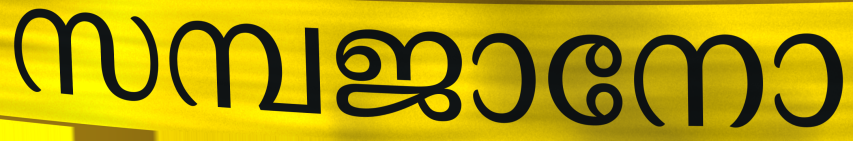
സമ്പജാനോ